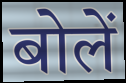
बोलें